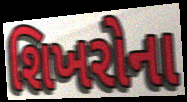
શિખરોના